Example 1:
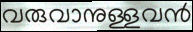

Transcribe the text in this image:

വരുവാനുള്ളവൻ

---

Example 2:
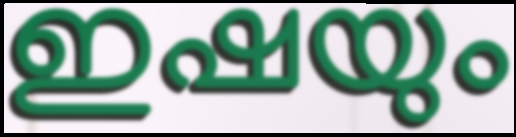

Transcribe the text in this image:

ഇഷയും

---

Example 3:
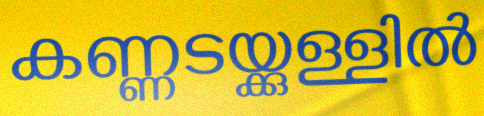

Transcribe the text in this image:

കണ്ണടയ്ക്കുള്ളിൽ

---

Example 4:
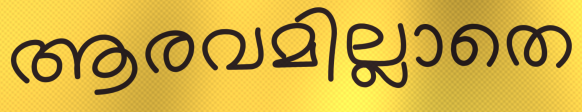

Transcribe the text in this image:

ആരവമില്ലാതെ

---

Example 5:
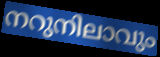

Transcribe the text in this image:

നറുനിലാവും